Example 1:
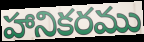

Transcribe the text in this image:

హానికరము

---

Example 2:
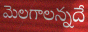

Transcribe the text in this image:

మెలగాలన్నదే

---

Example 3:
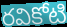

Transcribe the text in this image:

రవికోటి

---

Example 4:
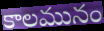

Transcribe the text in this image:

కాలమునం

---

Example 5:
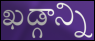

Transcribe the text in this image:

ఖడ్గాన్ని